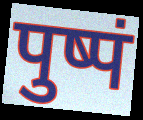
पुष्पं